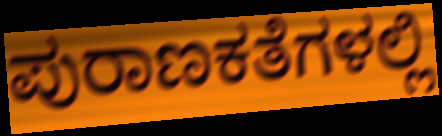
ಪುರಾಣಕತೆಗಳಲ್ಲಿ